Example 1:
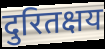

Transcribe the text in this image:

दुरितक्षय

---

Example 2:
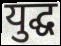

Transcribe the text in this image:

युद्घ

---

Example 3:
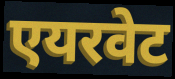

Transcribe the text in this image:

एयरवेट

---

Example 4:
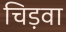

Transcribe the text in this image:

चिड़वा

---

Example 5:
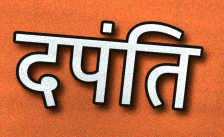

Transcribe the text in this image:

दपंति